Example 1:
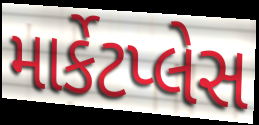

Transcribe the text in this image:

માર્કેટપ્લેસ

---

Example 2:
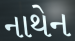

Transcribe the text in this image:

નાથેન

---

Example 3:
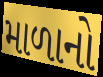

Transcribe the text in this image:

માળાનો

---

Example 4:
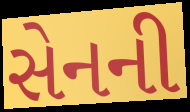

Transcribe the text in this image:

સેનની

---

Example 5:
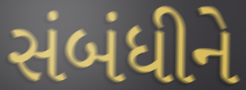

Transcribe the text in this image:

સંબંધીને